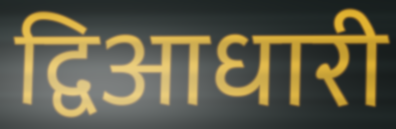
द्विआधारी